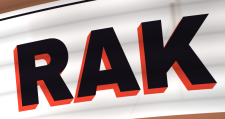
RAK